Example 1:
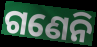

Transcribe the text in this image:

ଗଣେନି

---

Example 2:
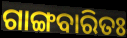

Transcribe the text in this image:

ଗାଙ୍ଗବାରିତଃ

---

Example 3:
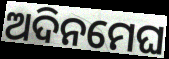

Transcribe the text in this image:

ଅଦିନମେଘ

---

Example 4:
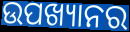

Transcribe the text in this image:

ଉପଖ୍ୟାନର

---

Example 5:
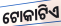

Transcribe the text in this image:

ଟୋକାଟିଏ